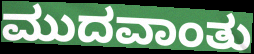
ಮುದವಾಂತು